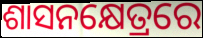
ଶାସନକ୍ଷେତ୍ରରେ